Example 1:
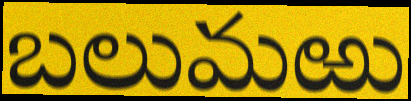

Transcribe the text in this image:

బలుమఱు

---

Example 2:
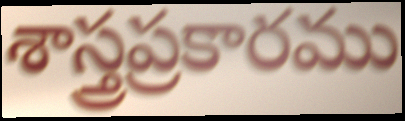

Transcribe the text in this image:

శాస్త్రప్రకారము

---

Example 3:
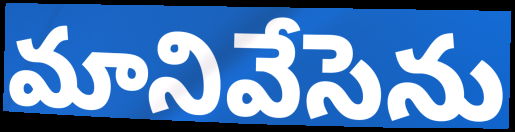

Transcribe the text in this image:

మానివేసెను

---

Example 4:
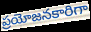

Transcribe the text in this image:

ప్రయోజనకారిగా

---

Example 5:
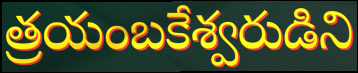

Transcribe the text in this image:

త్రయంబకేశ్వరుడిని